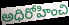
అధిరోహించి